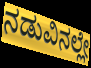
ನಡುವಿನಲ್ಲೇ